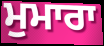
ਮੁਮਾਰਾ